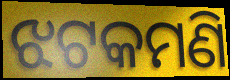
ଝଟକମଣି